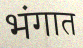
भंगात